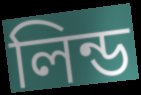
লিন্ড